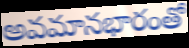
అవమానభారంతో